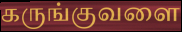
கருங்குவளை